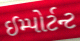
ઈમ્પોર્ટન્ટ